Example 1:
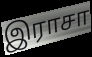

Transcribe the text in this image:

இராசா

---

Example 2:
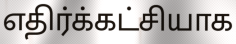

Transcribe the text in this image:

எதிர்க்கட்சியாக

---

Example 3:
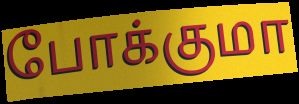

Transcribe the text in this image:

போக்குமா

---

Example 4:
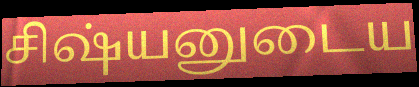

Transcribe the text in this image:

சிஷ்யனுடைய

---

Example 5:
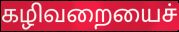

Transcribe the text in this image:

கழிவறையைச்